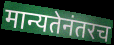
मान्यतेनंतरच